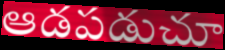
ఆడపడుచూ